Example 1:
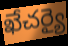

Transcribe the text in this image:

ఖేచర్యై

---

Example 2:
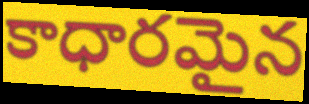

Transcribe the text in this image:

కాధారమైన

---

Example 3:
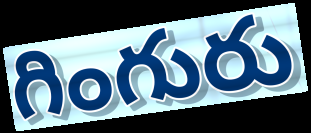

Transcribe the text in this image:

గింగురు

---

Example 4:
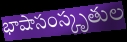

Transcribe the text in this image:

భాషాసంస్కృతుల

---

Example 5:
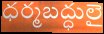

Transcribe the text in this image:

ధర్మబద్ధులై